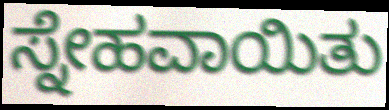
ಸ್ನೇಹವಾಯಿತು